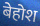
बेहोश